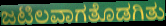
ಜಟಿಲವಾಗತೊಡಗಿತು